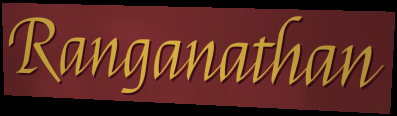
Ranganathan